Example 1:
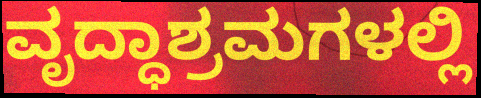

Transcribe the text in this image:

ವೃದ್ಧಾಶ್ರಮಗಳಲ್ಲಿ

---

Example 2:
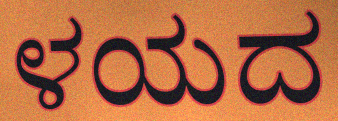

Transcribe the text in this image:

ಳಯದ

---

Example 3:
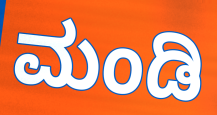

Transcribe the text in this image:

ಮಂಡಿ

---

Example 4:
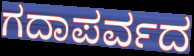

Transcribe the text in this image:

ಗದಾಪರ್ವದ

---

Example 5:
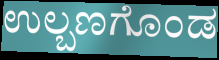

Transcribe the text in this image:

ಉಲ್ಬಣಗೊಂಡ